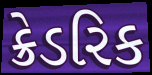
ક્રેડરિક